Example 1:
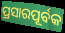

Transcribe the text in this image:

ପ୍ରସାରପୂର୍ବକ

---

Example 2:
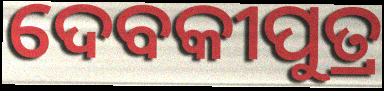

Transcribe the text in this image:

ଦେବକୀପୁତ୍ର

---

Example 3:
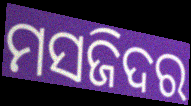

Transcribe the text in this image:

ମସଜିଦର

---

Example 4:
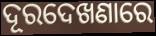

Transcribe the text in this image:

ଦୂରଦେଖଣାରେ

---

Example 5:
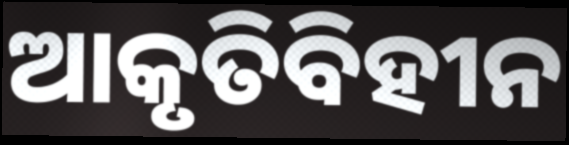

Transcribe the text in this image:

ଆକୃତିବିହୀନ